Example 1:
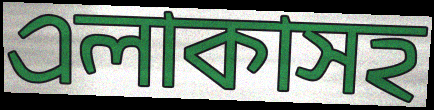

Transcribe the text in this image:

এলাকাসহ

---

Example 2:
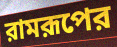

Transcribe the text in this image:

রামরূপের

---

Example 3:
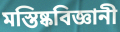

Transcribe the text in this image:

মস্তিষ্কবিজ্ঞানী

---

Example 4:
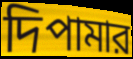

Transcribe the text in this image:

দিপামার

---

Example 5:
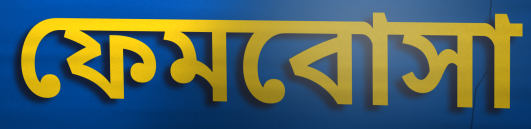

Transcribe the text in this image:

ফেমবোসা